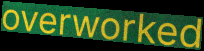
overworked